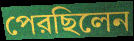
পেরছিলেন